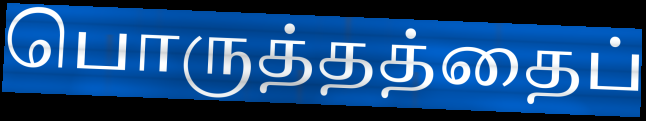
பொருத்தத்தைப்